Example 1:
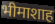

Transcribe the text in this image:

भीमाशाह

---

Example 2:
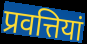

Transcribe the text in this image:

प्रवत्तियां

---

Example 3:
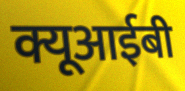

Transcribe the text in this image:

क्यूआईबी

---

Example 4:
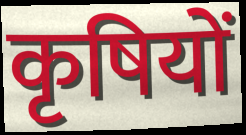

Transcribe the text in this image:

कृषियों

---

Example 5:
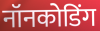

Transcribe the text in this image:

नॉनकोडिंग